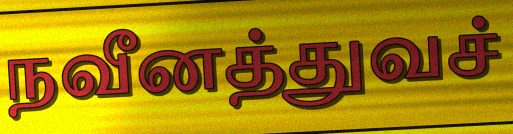
நவீனத்துவச்